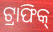
ଟ୍ରାଫିକ୍